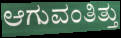
ಆಗುವಂತಿತ್ತು